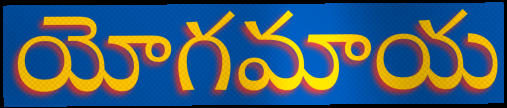
యోగమాయ